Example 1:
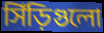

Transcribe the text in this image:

সিঁড়িগুলো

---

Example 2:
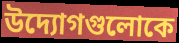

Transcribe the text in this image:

উদ্যোগগুলোকে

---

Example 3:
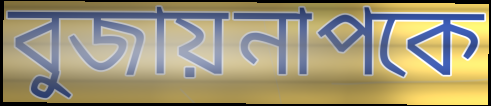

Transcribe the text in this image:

বুজায়নাপকে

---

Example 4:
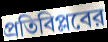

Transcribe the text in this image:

প্রতিবিপ্লবের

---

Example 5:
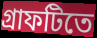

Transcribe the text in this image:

গ্রাফটিতে